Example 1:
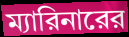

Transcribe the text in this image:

ম্যারিনারের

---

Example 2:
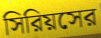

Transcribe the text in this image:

সিরিয়সের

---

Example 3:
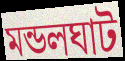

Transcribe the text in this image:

মন্ডলঘাট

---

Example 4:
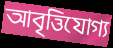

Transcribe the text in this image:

আবৃত্তিযোগ্য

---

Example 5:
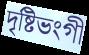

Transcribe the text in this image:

দৃষ্টিভংগী